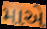
માએ